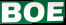
BOE